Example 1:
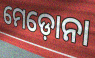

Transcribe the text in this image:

ମେଡ଼ୋନା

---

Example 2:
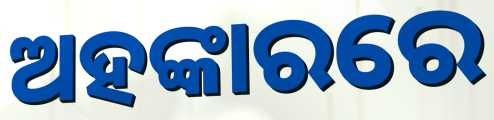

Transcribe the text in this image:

ଅହଙ୍କାରରେ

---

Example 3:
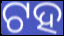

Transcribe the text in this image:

ଟହ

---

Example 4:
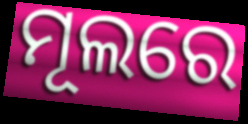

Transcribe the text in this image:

ମୂଲରେ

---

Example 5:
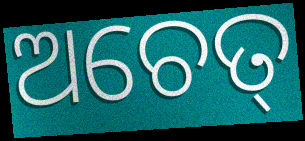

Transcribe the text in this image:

ଅଚେତ୍